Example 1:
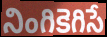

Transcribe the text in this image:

నింగికెగిసే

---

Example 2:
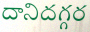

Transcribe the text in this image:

దానిదగ్గర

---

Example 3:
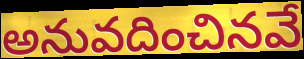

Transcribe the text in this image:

అనువదించినవే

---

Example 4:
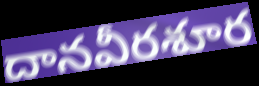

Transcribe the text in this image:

దానవీరశూర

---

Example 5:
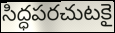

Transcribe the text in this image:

సిద్ధపరచుటకై